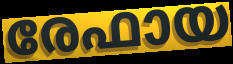
രേഫായ